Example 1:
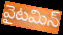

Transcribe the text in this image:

వైటమిన్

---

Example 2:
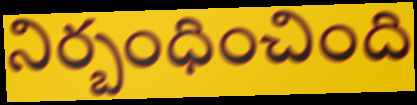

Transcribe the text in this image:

నిర్బంధించింది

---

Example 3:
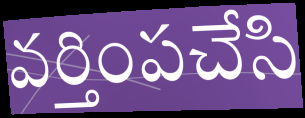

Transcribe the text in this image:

వర్తింపచేసి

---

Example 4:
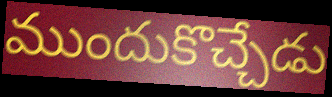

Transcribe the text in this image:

ముందుకొచ్చేడు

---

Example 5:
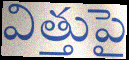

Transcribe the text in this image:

విత్తుపై